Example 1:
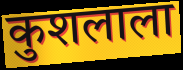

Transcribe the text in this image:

कुशलाला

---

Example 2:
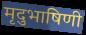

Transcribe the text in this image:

मृदुभाषिणी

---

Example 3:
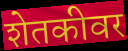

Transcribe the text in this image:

शेतकीवर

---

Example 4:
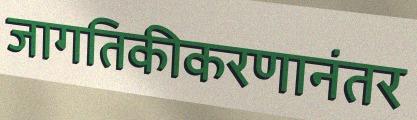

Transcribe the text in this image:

जागतिकीकरणानंतर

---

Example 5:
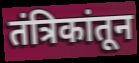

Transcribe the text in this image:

तंत्रिकांतून